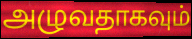
அழுவதாகவும்